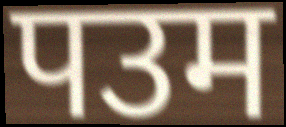
पउम